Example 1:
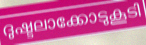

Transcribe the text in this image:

ദുഷ്ടലാക്കോടുകൂടി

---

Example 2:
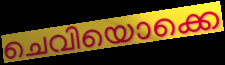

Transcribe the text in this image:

ചെവിയൊക്കെ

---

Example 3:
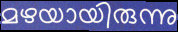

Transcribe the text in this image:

മഴയായിരുന്നു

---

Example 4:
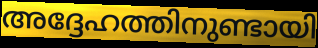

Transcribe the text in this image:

അദ്ദേഹത്തിനുണ്ടായി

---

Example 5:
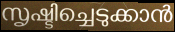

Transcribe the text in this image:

സൃഷ്ടിച്ചെടുക്കാൻ